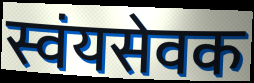
स्वंयसेवक